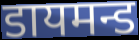
डायमन्ड